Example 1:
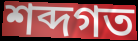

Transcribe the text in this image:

শব্দগত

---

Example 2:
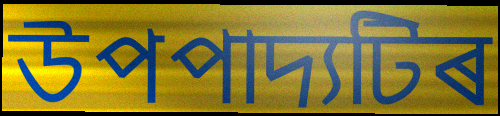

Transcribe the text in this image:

উপপাদ্যটিৰ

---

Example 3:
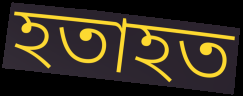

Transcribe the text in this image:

হতাহত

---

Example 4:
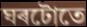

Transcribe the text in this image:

ঘৰটোতে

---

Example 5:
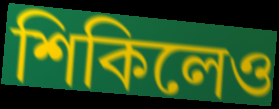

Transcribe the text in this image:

শিকিলেও